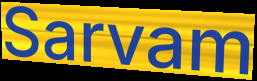
Sarvam